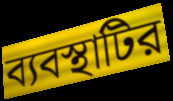
ব্যবস্থাটির